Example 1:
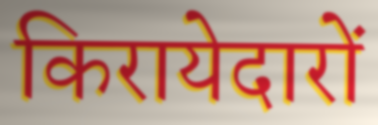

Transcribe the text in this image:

किरायेदारों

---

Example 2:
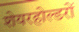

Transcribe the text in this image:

शेयरहोल्डरों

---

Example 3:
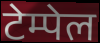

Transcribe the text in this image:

टेम्पेल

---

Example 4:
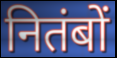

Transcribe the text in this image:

नितंबों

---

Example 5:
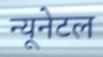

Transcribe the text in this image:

न्यूनेटल